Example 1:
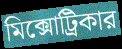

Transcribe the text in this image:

মিক্সোট্রিকার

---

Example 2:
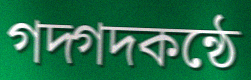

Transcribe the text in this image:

গদ্গদকন্ঠে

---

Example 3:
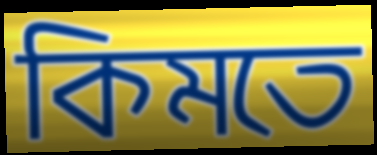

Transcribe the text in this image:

কিমতে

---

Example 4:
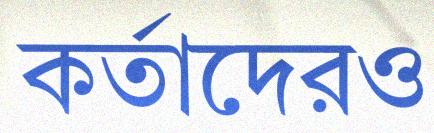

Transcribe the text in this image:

কর্তাদেরও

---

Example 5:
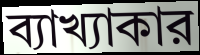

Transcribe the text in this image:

ব্যাখ্যাকার